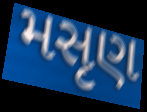
મસૃણ